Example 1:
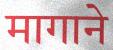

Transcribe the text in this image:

मागाने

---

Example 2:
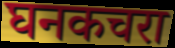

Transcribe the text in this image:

घनकचरा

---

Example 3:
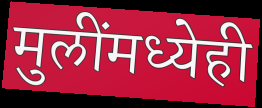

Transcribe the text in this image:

मुलींमध्येही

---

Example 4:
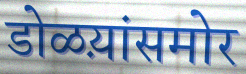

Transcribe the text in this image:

डोळय़ांसमोर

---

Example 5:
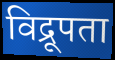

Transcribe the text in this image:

विद्रूपता